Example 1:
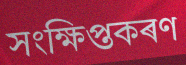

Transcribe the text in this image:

সংক্ষিপ্তকৰণ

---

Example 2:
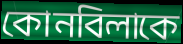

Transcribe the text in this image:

কোনবিলাকে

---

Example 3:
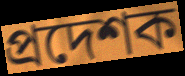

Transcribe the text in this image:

প্ৰদেশক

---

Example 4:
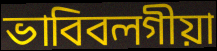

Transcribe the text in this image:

ভাবিবলগীয়া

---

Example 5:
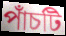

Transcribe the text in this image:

পাঁচটি